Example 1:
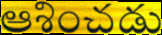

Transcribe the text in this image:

ఆశించడు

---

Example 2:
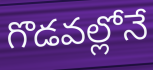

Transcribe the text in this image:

గొడవల్లోనే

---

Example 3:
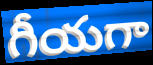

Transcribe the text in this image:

గీయగా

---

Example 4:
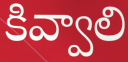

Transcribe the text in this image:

కివ్వాలి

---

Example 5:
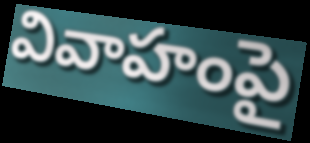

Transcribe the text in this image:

వివాహంపై